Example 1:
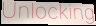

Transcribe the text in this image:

Unlocking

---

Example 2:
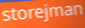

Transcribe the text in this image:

storejman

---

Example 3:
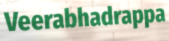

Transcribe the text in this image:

Veerabhadrappa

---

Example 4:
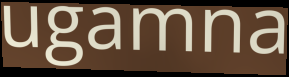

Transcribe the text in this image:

ugamna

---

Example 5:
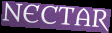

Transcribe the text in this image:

NECTAR